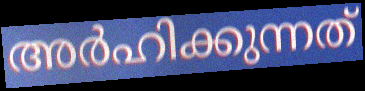
അർഹിക്കുന്നത്